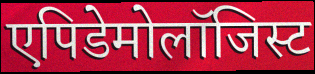
एपिडेमोलॉजिस्ट